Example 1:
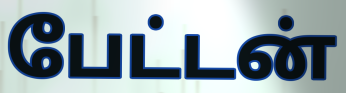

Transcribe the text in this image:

பேட்டன்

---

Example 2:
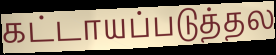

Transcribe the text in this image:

கட்டாயப்படுத்தல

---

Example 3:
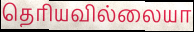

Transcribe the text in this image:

தெரியவில்லையா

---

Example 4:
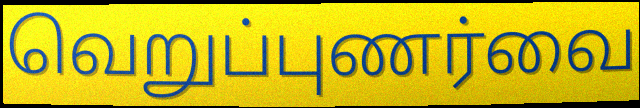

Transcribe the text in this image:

வெறுப்புணர்வை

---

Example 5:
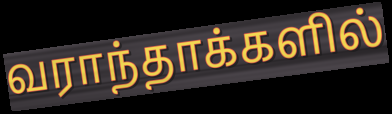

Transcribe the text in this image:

வராந்தாக்களில்